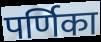
पर्णिका